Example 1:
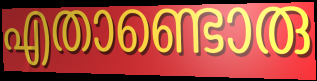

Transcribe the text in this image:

എതാണ്ടൊരു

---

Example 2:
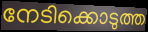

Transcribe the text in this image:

നേടിക്കൊടുത്ത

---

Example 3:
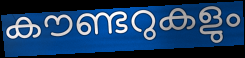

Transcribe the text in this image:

കൗണ്ടറുകളും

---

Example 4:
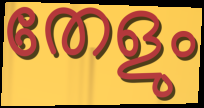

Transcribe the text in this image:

തേളും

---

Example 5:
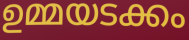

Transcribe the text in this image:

ഉമ്മയടക്കം